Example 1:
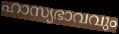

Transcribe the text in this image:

ഹാസ്യഭാവവും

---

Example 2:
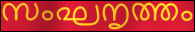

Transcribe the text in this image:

സംഘനൃത്തം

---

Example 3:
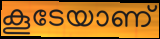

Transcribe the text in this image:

കൂടേയാണ്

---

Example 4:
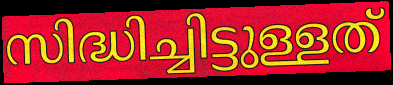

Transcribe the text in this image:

സിദ്ധിച്ചിട്ടുള്ളത്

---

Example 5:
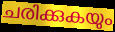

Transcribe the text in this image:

ചരിക്കുകയും